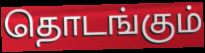
தொடங்கும்